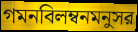
গমনবিলম্বনমনুসর